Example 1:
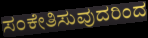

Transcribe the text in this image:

ಸಂಕೇತಿಸುವುದರಿಂದ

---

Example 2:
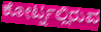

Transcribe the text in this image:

ಕೋರ್ಟ್ನಲ್ಲಿರುವ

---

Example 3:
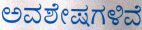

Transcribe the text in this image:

ಅವಶೇಷಗಳಿವೆ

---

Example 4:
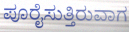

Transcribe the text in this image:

ಪೂರೈಸುತ್ತಿರುವಾಗ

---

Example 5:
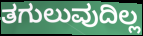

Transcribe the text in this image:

ತಗುಲುವುದಿಲ್ಲ